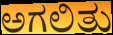
ಅಗಲಿತು